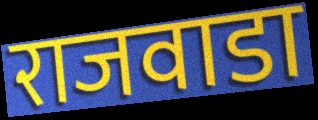
राजवाडा